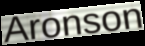
Aronson